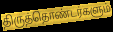
திருத்தொண்டர்களும்